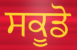
ਸਕੂਡੋ